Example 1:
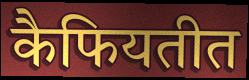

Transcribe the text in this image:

कैफियतीत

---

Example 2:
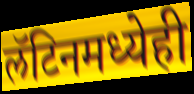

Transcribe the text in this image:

लॅटिनमध्येही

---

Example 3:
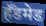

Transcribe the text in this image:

हॅंडमेड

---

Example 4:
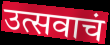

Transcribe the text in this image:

उत्सवाचं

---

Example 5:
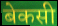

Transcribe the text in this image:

बेकसी